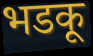
भडकू